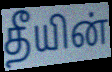
தீயின்